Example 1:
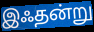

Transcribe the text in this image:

இஃதன்று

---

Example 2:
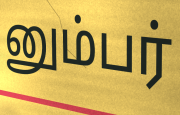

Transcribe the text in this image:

னும்பர்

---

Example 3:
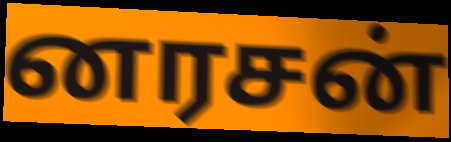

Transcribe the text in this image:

னரசன்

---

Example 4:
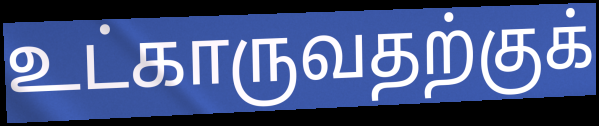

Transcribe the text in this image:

உட்காருவதற்குக்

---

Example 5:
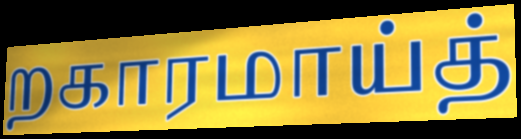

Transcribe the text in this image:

றகாரமாய்த்